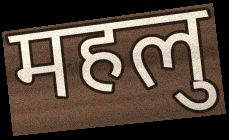
महलु